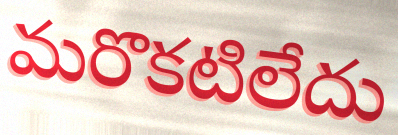
మరొకటిలేదు